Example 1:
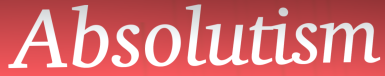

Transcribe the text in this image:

Absolutism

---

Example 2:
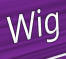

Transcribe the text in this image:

Wig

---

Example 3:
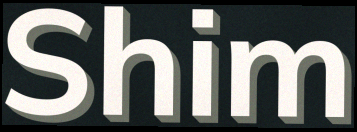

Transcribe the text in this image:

Shim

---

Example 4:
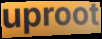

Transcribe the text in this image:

uproot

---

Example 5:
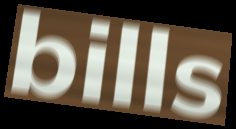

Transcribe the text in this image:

bills